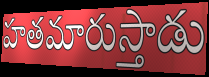
హతమారుస్తాడు